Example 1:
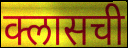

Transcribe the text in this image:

क्लासची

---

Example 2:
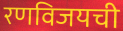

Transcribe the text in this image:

रणविजयची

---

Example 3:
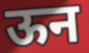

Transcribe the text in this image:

ऊन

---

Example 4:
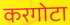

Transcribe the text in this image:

करगोटा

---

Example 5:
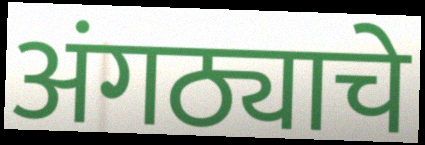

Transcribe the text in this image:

अंगठ्याचे